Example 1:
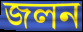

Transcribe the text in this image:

জলন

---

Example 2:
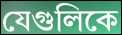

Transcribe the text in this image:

যেগুলিকে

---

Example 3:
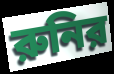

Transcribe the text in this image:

রুনির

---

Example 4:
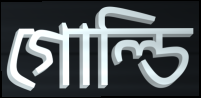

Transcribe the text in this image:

গোল্ডি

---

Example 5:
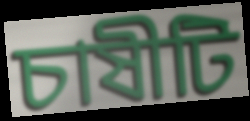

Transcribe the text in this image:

চাষীটি